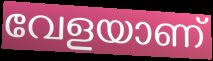
വേളയാണ്